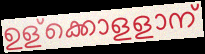
ഉള്ക്കൊളളാന്